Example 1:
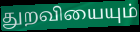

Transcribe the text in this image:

துறவியையும்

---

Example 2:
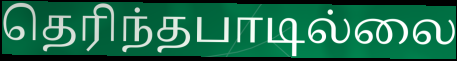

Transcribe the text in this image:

தெரிந்தபாடில்லை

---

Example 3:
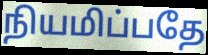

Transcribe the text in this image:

நியமிப்பதே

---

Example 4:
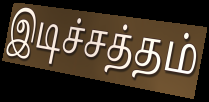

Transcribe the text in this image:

இடிச்சத்தம்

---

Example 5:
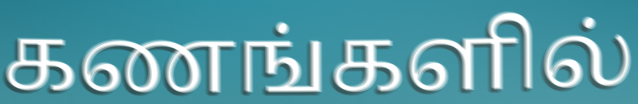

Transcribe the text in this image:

கணங்களில்